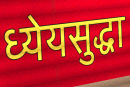
ध्येयसुद्धा